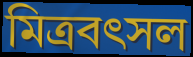
মিত্রবৎসল